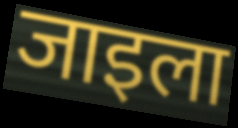
जाइला